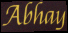
Abhay